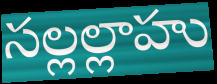
సల్లల్లాహు